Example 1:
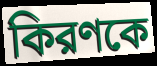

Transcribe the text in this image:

কিরণকে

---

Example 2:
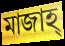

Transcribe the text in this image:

মাজাহ্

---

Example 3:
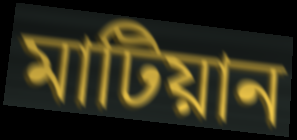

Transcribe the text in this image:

মাটিয়ান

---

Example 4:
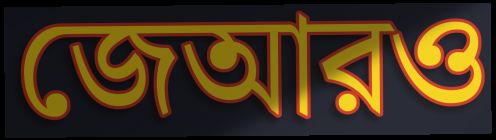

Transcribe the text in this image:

জেআরও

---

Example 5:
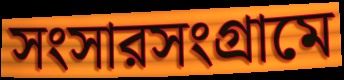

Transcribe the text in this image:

সংসারসংগ্রামে